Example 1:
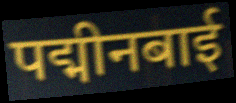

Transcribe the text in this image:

पद्मीनबाई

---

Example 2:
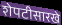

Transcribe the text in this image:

शेपटीसारखे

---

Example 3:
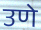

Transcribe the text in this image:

उणे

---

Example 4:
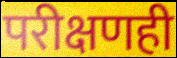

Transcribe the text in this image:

परीक्षणही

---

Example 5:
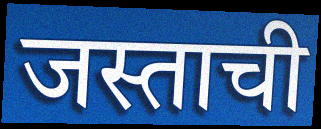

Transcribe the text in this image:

जस्ताची